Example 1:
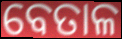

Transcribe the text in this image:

ବେତାଳ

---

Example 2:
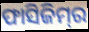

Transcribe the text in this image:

ଫାସିଜିମ୍‌ର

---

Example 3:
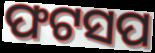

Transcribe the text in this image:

ଫଟସପ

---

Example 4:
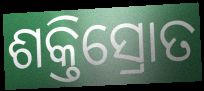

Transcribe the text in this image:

ଶକ୍ତିସ୍ରୋତ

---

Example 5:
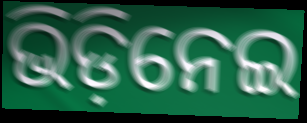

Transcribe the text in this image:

ଭିଡ଼ିନେଇ